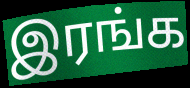
இரங்க